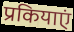
प्रकियाएं